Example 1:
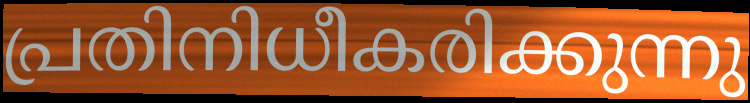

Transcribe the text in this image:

പ്രതിനിധീകരിക്കുന്നു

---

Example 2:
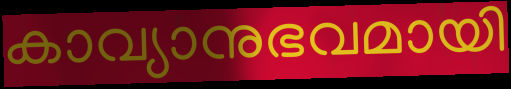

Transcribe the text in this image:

കാവ്യാനുഭവമായി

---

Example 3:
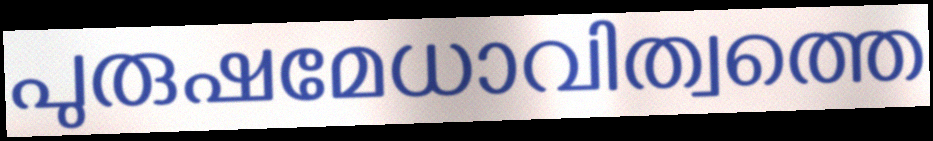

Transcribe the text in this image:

പുരുഷമേധാവിത്വത്തെ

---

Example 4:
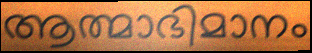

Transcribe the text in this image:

ആത്മാഭിമാനം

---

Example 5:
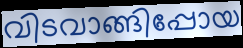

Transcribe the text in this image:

വിടവാങ്ങിപ്പോയ